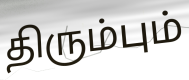
திரும்பும்